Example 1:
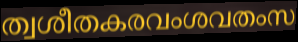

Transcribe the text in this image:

ത്വശീതകരവംശവതംസ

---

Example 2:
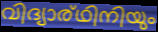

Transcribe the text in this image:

വിദ്യാര്ഥിനിയും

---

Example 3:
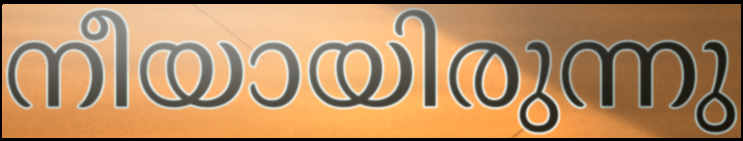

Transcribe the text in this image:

നീയായിരുന്നു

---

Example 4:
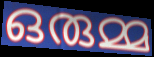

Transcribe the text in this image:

ഒരുമ്മ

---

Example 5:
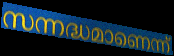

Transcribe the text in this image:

സന്നദ്ധമാണെന്ന്